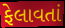
ફેલાવતાં